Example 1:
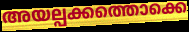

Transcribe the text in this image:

അയല്പക്കത്തൊക്കെ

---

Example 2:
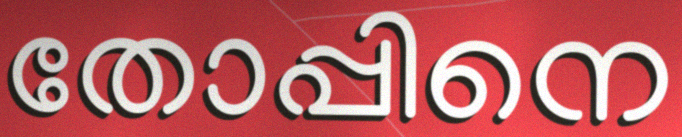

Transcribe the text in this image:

തോപ്പിനെ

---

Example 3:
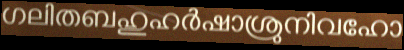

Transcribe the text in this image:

ഗലിതബഹുഹർഷാശ്രുനിവഹോ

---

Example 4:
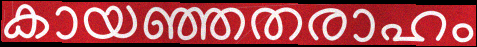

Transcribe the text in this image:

കായഞ്ഞതരാഹം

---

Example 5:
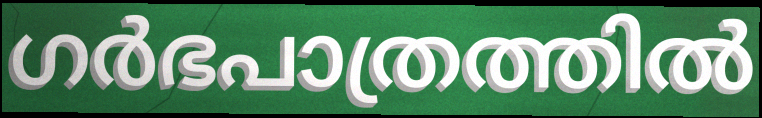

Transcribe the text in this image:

ഗർഭപാത്രത്തിൽ